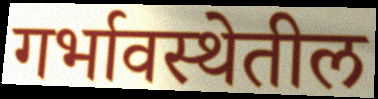
गर्भावस्थेतील